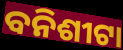
ବନିଶୀଟା